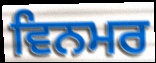
ਵਿਨਮਰ